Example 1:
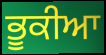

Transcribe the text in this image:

ਭੂਕੀਆ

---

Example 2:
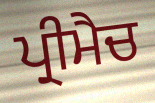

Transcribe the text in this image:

ਪ੍ਰੀਮੈਚ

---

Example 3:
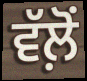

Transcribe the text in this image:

ਵੱਲ਼ੋਂ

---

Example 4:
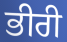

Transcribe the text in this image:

ਭੀਰੀ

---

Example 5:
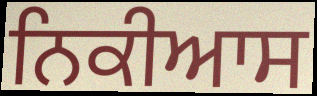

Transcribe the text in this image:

ਨਿਕੀਆਸ